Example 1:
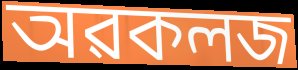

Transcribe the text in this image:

অৱকলজ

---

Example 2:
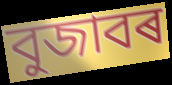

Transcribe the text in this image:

বুজাবৰ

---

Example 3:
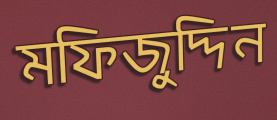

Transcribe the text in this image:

মফিজুদ্দিন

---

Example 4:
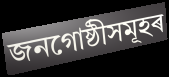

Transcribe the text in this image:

জনগোষ্ঠীসমূহৰ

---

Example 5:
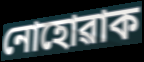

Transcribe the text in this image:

নোহোৱাক